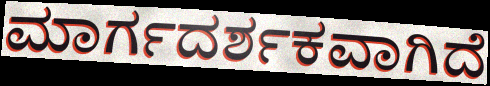
ಮಾರ್ಗದರ್ಶಕವಾಗಿದೆ